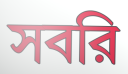
সবরি